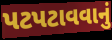
પટપટાવવાનું